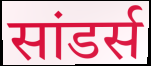
सांडर्स